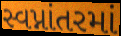
સ્વપ્નાંતરમાં